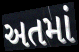
અતમાં